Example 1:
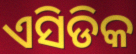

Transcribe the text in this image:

ଏସିଡିକ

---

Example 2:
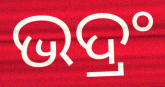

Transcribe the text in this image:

ଭଦ୍ରଂ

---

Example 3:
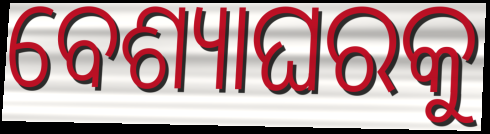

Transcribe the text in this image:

ବେଶ୍ୟାଘରକୁ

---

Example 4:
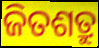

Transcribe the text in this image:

ଜିତଶତ୍ରୁ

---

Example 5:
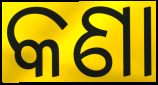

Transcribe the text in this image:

କଣା